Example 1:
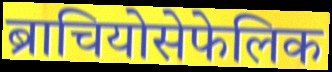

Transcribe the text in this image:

ब्राचियोसेफेलिक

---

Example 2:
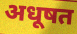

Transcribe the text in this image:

अधूषत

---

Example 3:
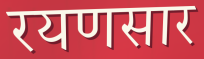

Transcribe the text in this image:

रयणसार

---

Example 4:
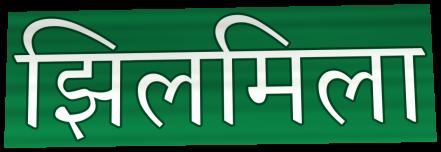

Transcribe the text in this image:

झिलमिला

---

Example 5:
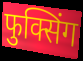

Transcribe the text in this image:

फुक्सिंग